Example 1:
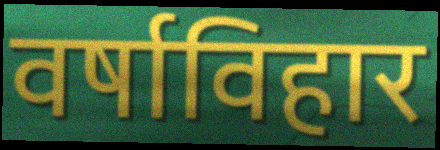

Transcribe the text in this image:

वर्षाविहार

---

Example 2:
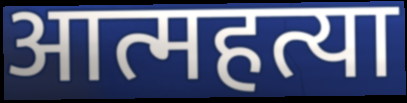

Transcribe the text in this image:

आत्महत्या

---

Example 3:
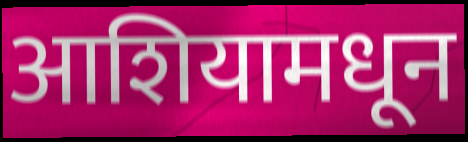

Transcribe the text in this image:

आशियामधून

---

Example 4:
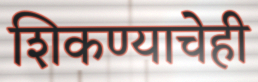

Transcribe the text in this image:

शिकण्याचेही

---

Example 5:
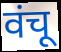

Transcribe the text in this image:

वंचू